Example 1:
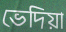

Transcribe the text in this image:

ভেদিয়া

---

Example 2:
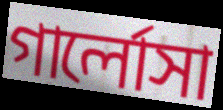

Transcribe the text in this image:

গার্লোসা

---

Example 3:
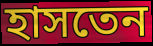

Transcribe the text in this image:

হাসতেন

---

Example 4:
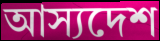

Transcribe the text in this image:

আস্যদেশ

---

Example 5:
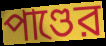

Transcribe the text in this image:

পাণ্ডের